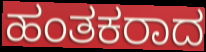
ಹಂತಕರಾದ